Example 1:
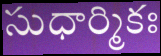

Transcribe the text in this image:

సుధార్మికః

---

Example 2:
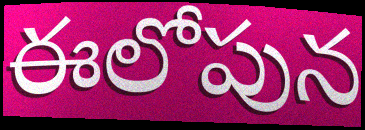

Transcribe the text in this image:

ఈలోపున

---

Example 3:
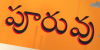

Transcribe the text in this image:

పూరువు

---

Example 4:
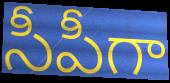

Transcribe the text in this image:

సీపీగా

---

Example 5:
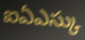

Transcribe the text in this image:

ఐఏఎస్కు